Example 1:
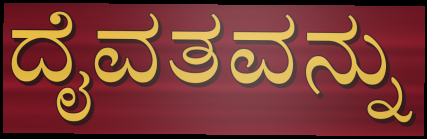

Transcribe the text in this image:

ದೈವತವನ್ನು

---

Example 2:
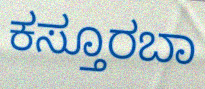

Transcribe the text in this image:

ಕಸ್ತೂರಬಾ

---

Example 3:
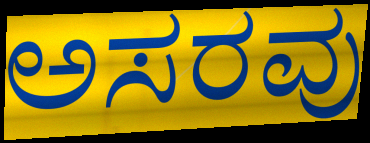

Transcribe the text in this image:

ಅಸರವು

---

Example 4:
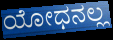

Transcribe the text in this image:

ಯೋಧನಲ್ಲ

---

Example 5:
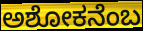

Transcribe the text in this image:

ಅಶೋಕನೆಂಬ